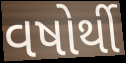
વષોર્થી